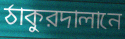
ঠাকুরদালানে